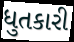
ધુતકારી